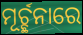
ମୂର୍ଚ୍ଛନାରେ